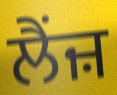
ਲੈਂਜ਼